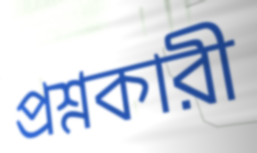
প্রশ্নকারী